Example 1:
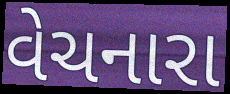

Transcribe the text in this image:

વેચનારા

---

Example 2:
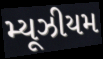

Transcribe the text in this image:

મ્યૂઝીયમ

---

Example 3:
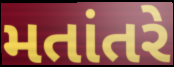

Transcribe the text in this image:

મતાંતરે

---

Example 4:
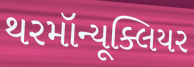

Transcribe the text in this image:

થરમૉન્યૂક્લિયર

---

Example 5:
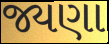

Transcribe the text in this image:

જ્યણા